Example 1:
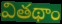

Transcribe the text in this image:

వితథాం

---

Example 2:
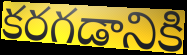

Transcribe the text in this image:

కరగడానికి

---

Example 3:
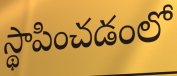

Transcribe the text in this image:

స్థాపించడంలో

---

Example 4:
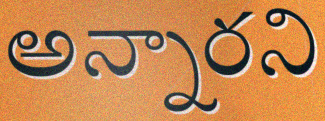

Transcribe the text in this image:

అన్నారని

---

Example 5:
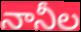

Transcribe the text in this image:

నానీల